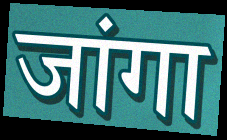
जांगा